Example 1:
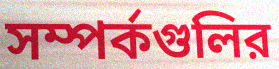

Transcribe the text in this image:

সম্পর্কগুলির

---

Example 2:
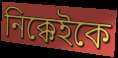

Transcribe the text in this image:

নিক্কেইকে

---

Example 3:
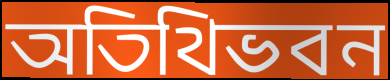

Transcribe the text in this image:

অতিথিভবন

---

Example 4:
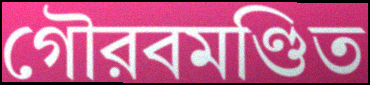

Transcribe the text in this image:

গৌরবমণ্ডিত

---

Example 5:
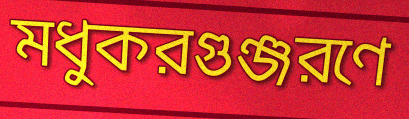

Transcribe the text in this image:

মধুকরগুঞ্জরণে